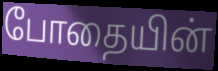
போதையின்